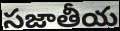
సజాతీయ